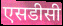
एसडीसी